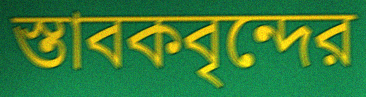
স্তাবকবৃন্দের